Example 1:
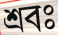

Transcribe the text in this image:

শ্রবঃ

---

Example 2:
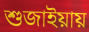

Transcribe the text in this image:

শুজাইয়ায়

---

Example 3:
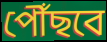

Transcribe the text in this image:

পৌঁছবে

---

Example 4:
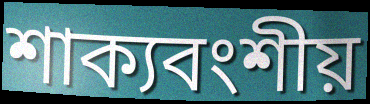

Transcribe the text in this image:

শাক্যবংশীয়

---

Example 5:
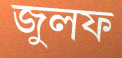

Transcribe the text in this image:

জুলফ